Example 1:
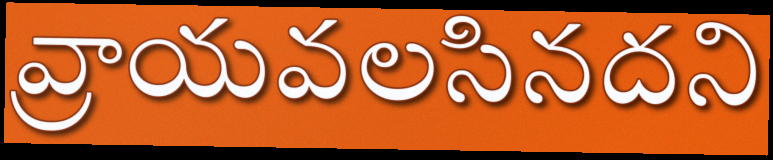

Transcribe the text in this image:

వ్రాయవలసినదని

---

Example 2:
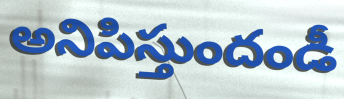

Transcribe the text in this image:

అనిపిస్తుందండీ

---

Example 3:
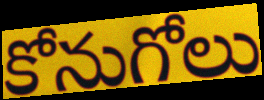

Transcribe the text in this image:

కోనుగోలు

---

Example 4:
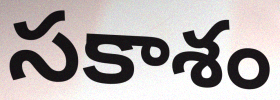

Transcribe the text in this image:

సకాశం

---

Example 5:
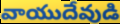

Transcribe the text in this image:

వాయుదేవుడి